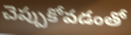
చెప్పుకోవడంతో